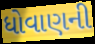
ધોવાણની